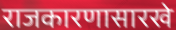
राजकारणासारखे